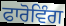
ਫਾਰੋਵਿੰਗ